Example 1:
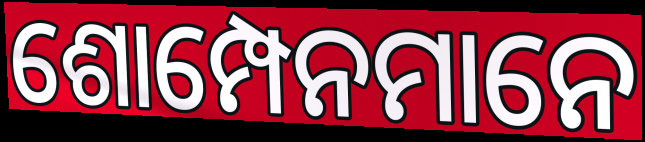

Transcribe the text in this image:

ଶୋମ୍ପେନମାନେ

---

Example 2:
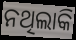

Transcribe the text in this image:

ନଥିଲାକି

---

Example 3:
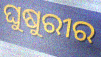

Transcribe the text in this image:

ଘୁଷୁରୀର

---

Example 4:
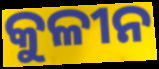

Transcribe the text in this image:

କୁଳୀନ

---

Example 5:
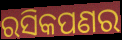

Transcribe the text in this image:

ରସିକପଣର